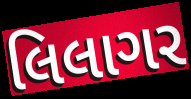
લિલાગર